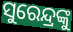
ସୁରେନ୍ଦ୍ରଙ୍କୁ